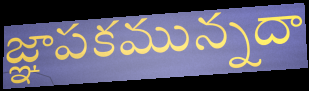
జ్ఞాపకమున్నదా